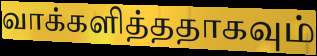
வாக்களித்ததாகவும்